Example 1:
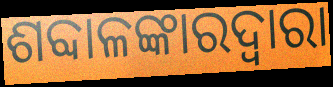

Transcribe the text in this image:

ଶବ୍ଦାଳଙ୍କାରଦ୍ୱାରା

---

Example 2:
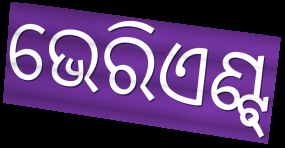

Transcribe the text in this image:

ଭେରିଏଣ୍ଟ୍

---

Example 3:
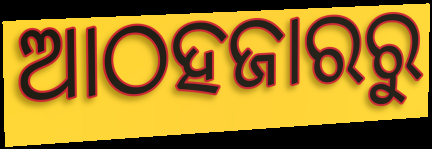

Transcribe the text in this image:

ଆଠହଜାରରୁ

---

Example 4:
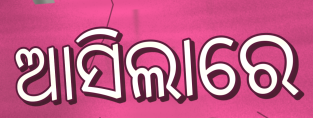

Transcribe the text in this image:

ଆସିଲାରେ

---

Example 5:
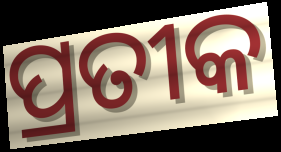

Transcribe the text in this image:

ପ୍ରତୀକ